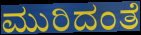
ಮುರಿದಂತೆ